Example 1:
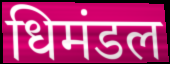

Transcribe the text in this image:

धिमंडल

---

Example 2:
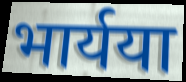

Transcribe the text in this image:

भार्यया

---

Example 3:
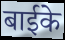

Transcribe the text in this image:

बाईके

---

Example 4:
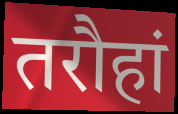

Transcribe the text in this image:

तरौहां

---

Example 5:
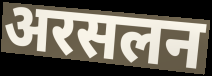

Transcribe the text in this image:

अरसलन